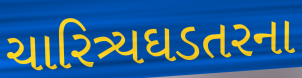
ચારિત્ર્યઘડતરના